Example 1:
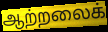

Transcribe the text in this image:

ஆற்றலைக்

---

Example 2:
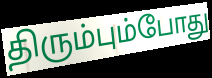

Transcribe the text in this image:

திரும்பும்போது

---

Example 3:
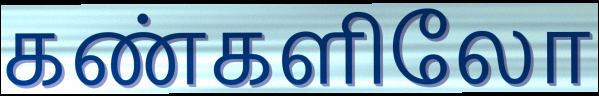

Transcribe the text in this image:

கண்களிலோ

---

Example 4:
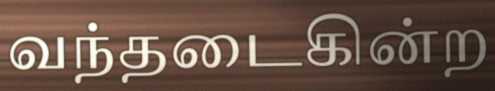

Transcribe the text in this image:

வந்தடைகின்ற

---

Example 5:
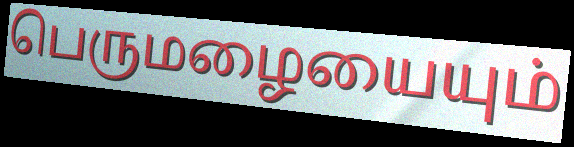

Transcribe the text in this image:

பெருமழையையும்